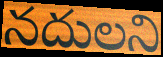
నదులని